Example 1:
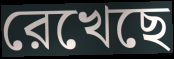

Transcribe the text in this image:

রেখেছে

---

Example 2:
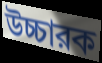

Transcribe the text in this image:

উচ্চারক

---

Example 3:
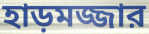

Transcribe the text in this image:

হাড়মজ্জার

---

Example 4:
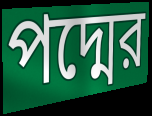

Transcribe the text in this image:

পদ্মের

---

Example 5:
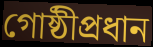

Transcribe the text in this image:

গোষ্ঠীপ্রধান